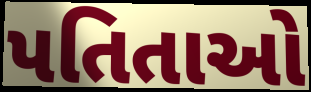
પતિતાઓ